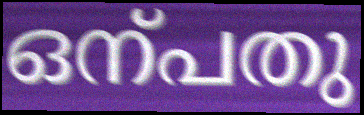
ഒന്പതു